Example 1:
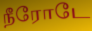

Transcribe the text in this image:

நீரோடே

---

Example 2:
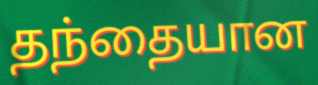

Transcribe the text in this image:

தந்தையான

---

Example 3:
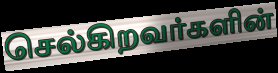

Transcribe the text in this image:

செல்கிறவர்களின்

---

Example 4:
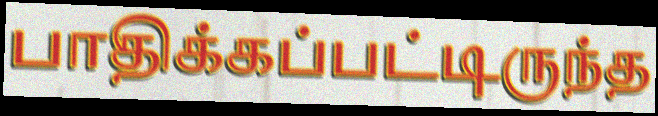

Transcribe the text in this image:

பாதிக்கப்பட்டிருந்த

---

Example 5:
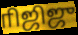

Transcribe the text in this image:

ரிஜிஜு